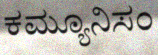
ಕಮ್ಯೂನಿಸಂ